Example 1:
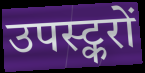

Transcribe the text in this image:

उपस्ट्करों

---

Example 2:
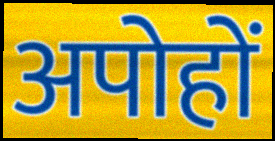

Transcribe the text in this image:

अपोहों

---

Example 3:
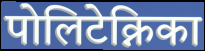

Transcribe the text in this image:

पोलिटेक्निका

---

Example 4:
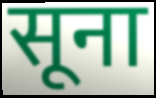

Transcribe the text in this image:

सूना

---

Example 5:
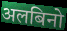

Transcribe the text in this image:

अलबिनो